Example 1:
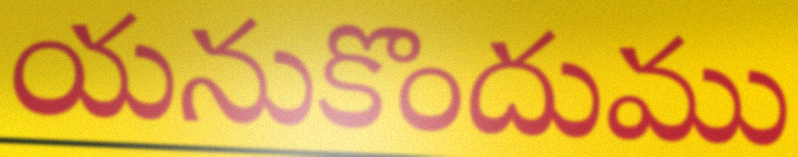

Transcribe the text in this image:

యనుకొందుము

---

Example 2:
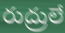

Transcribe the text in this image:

రుద్రులే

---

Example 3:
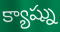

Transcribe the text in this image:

క్యాష్ను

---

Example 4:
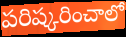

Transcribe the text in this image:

పరిష్కరించాలో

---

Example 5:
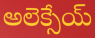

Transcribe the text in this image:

అలెక్సేయ్